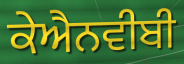
ਕੇਐਨਵੀਬੀ